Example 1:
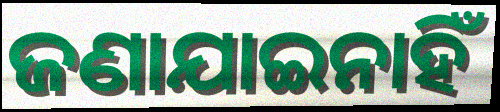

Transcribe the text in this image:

ଜଣାଯାଇନାହିଁ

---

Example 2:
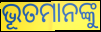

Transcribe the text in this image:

ଭୂତମାନଙ୍କୁ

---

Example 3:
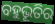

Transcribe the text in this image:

ବହୁଭୂତିର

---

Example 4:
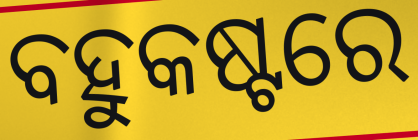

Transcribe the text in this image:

ବହୁକଷ୍ଟରେ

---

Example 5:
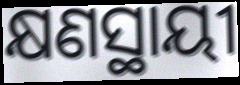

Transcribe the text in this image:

କ୍ଷଣସ୍ଥାୟୀ